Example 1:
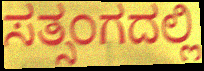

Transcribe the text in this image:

ಸತ್ಸಂಗದಲ್ಲಿ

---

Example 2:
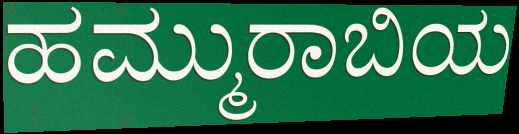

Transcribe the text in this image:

ಹಮ್ಮುರಾಬಿಯ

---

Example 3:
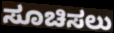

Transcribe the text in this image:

ಸೂಚಿಸಲು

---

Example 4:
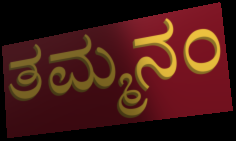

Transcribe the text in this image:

ತಮ್ಮನಂ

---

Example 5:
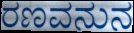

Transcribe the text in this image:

ರಣವನುನ